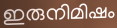
ഇരുനിമിഷം